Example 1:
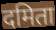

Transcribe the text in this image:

दमिता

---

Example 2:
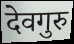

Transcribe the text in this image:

देवगुरु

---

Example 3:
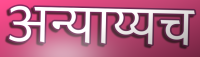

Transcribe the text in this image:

अन्याय्यच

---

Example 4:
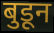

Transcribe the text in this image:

बुडून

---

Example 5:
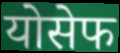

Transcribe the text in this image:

योसेफ